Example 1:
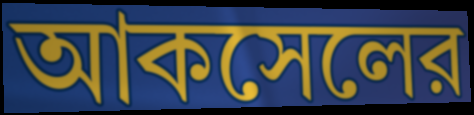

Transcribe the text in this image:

আকসেলের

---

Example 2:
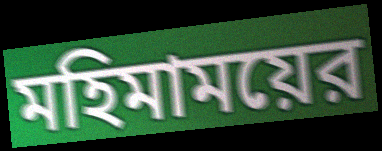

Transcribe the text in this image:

মহিমাময়ের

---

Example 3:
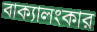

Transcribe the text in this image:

বাক্যালংকার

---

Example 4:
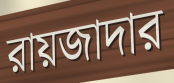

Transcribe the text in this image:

রায়জাদার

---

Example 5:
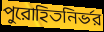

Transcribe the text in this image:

পুরোহিতনির্ভর